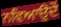
ਨਵਿਆਉਦੇਂ